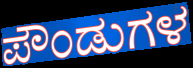
ಪೌಂಡುಗಳ